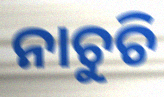
ନାଚୁଚି